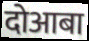
दोआबा